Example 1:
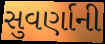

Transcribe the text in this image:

સુવર્ણાની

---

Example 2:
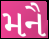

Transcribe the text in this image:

મનૈ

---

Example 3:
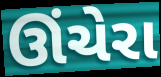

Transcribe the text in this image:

ઊંચેરા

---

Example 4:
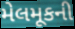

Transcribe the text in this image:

મેલમૂકની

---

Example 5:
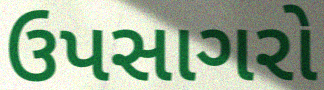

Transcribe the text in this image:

ઉપસાગરો